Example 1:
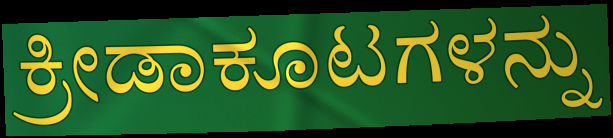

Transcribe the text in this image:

ಕ್ರೀಡಾಕೂಟಗಳನ್ನು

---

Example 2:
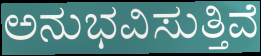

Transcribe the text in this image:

ಅನುಭವಿಸುತ್ತಿವೆ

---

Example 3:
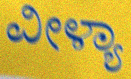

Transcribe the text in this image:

ವೀಳ್ಯಾ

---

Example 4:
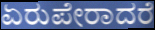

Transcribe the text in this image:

ಏರುಪೇರಾದರೆ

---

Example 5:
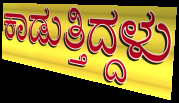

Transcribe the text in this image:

ಕಾಡುತ್ತಿದ್ದಳು